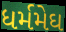
ધર્મમેઘ